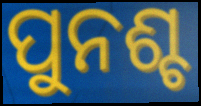
ପୁନଶ୍ଚ